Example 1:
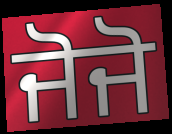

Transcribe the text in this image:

ਜੋਜੋ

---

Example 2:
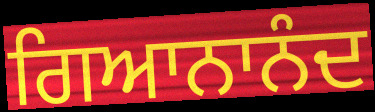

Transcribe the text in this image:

ਗਿਆਨਾਨੰਦ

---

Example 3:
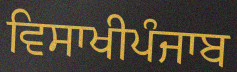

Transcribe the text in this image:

ਵਿਸਾਖੀਪੰਜਾਬ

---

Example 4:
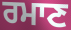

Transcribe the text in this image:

ਰਮਾਣ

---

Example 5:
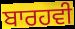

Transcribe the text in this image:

ਬਾਰਹਵੀ